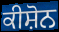
ਕੀਸ਼ੋਨ